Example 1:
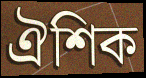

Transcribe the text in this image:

ঐশিক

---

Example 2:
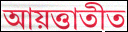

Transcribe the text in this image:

আয়ত্তাতীত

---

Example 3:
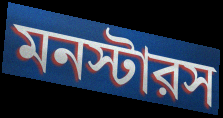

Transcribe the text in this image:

মনস্টারস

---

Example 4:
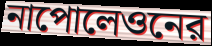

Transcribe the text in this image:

নাপোলেওনের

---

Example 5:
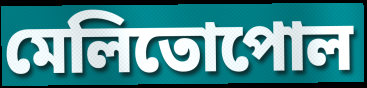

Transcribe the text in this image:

মেলিতোপোল